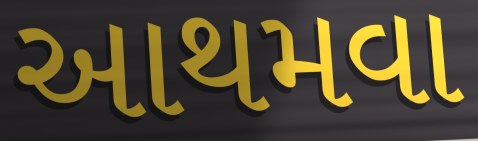
આથમવા